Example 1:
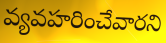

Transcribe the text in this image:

వ్యవహరించేవారని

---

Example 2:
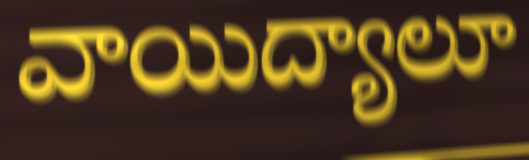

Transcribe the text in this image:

వాయిద్యాలూ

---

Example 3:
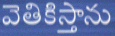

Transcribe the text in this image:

వెతికిస్తాను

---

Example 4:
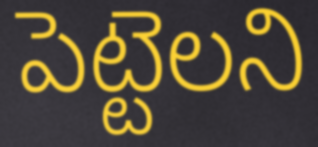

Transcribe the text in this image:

పెట్టెలని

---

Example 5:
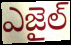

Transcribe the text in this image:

ఎజైల్